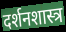
दर्शनशास्त्र